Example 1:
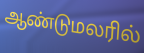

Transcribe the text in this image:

ஆண்டுமலரில்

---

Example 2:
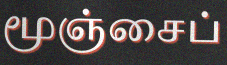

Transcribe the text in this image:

மூஞ்சைப்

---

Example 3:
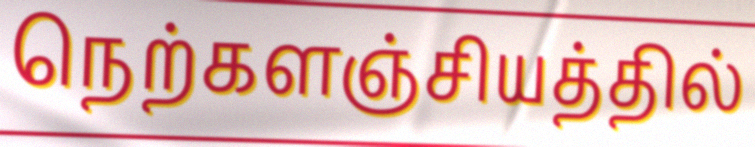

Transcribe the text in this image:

நெற்களஞ்சியத்தில்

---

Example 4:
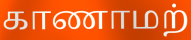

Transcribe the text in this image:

காணாமற்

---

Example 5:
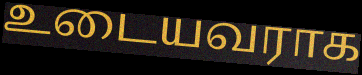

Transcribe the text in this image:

உடையவராக